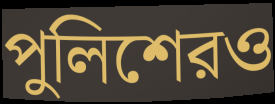
পুলিশেরও